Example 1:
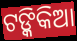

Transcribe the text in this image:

ଟଙ୍କିକିଆ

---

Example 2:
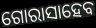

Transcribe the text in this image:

ଗୋରାସାହେବ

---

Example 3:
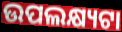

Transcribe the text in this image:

ଉପଲକ୍ଷ୍ୟଟା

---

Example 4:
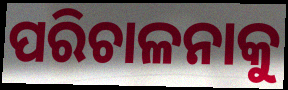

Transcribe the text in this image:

ପରିଚାଳନାକୁ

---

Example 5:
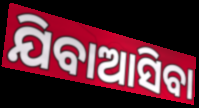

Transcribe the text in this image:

ଯିବାଆସିବା